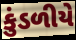
કુંડળીયે